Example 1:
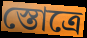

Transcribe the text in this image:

স্তোত্রে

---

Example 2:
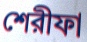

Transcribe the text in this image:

শেরীফা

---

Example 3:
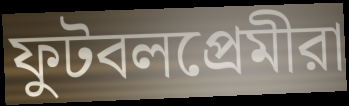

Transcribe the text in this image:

ফুটবলপ্রেমীরা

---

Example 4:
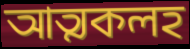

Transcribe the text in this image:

আত্মকলহ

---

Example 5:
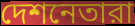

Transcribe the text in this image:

দেশনেতারা